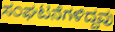
ಸಂಘಟನೆಗಳಿದ್ದವು